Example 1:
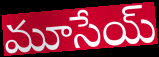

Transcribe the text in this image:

మూసేయ్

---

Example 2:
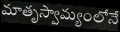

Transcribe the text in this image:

మాతృస్వామ్యంలోనే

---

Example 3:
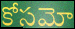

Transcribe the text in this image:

కోసమో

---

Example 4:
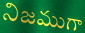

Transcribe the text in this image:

నిజముగా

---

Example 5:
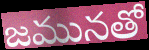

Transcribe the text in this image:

జమునతో